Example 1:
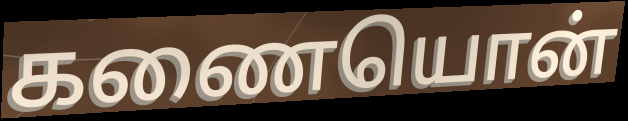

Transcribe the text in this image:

கணையொன்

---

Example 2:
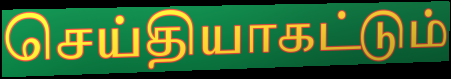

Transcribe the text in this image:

செய்தியாகட்டும்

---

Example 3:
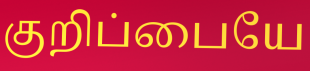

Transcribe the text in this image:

குறிப்பையே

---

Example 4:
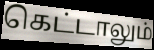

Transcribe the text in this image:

கெட்டாலும்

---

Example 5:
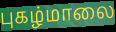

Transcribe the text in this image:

புகழ்மாலை